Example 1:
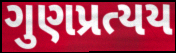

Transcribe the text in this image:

ગુણપ્રત્યય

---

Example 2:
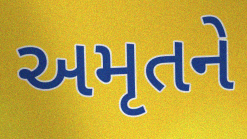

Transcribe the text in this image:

અમૃતને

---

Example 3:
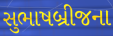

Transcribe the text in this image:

સુભાષબ્રીજના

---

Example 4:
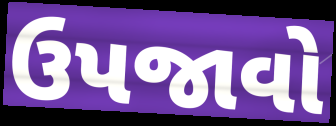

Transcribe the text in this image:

ઉપજાવો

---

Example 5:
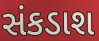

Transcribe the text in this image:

સંકડાશ